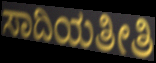
ಸಾದಿಯತೀತಿ